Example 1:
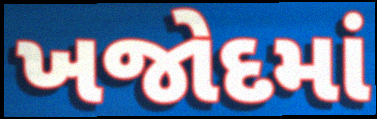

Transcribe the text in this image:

ખજોદમાં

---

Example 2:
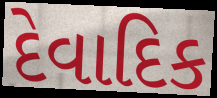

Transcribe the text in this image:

દેવાદિક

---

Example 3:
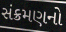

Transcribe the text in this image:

સંક્રમણનો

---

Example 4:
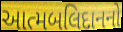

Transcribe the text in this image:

આત્મબલિદાનનો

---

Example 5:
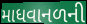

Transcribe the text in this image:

માધવાનળની